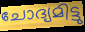
ചോദ്യമിട്ടു